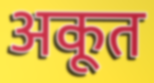
अकूत